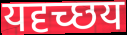
यदृच्छय